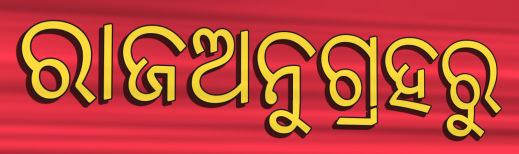
ରାଜଅନୁଗ୍ରହରୁ